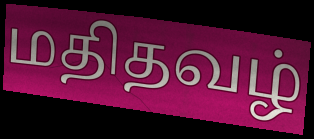
மதிதவழ்